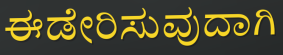
ಈಡೇರಿಸುವುದಾಗಿ